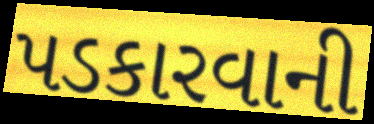
પડકારવાની